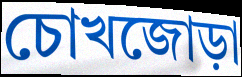
চোখজোড়া